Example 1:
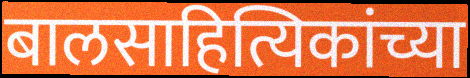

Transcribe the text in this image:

बालसाहित्यिकांच्या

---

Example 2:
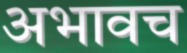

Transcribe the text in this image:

अभावच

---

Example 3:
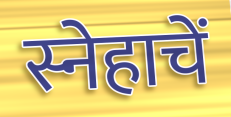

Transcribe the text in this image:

स्नेहाचें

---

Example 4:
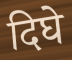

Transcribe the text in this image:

दिघे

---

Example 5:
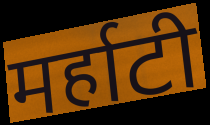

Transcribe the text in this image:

मर्हाटी